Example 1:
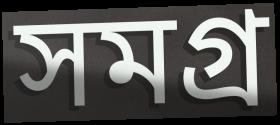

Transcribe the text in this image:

সমগ্র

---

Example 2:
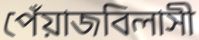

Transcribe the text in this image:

পেঁয়াজবিলাসী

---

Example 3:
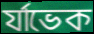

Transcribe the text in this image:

র্যাভেক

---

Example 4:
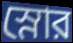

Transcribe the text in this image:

স্নোর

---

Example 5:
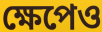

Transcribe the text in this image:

ক্ষেপেও